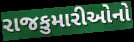
રાજકુમારીઓનો